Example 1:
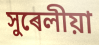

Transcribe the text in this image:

সুৰেলীয়া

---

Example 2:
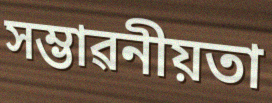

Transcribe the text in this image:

সম্ভাৱনীয়তা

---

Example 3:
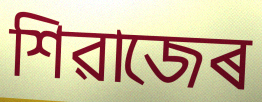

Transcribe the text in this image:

শিৱাজেৰ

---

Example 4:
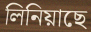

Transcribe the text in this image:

লিনিয়াছে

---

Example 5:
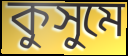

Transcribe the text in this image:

কুসুমে